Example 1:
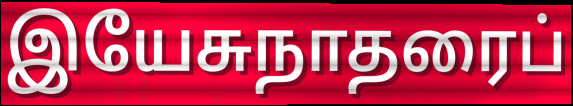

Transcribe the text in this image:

இயேசுநாதரைப்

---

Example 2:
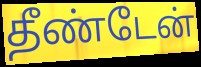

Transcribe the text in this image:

தீண்டேன்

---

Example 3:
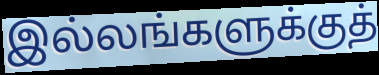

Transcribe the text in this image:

இல்லங்களுக்குத்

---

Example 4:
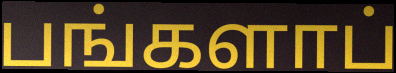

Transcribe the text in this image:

பங்களாப்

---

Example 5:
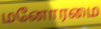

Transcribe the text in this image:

மனோரமை